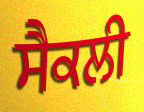
ਸੈਕਲੀ